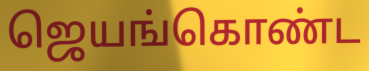
ஜெயங்கொண்ட